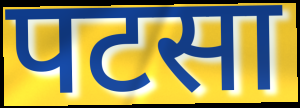
पटसा